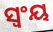
ସ୍ୱଂୟ